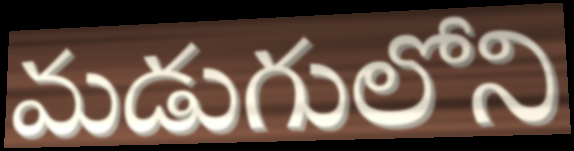
మడుగులోని